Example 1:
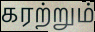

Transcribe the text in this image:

கரற்றும்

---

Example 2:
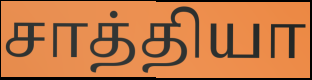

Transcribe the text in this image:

சாத்தியா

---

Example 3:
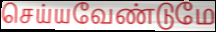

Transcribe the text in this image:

செய்யவேண்டுமே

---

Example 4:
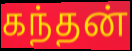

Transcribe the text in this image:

கந்தன்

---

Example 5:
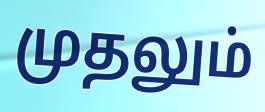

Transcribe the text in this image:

முதலும்